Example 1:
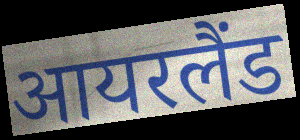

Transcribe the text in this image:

आयरलैंड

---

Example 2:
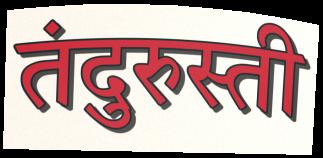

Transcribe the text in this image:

तंदुरुस्ती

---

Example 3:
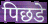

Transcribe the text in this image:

पिछडे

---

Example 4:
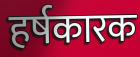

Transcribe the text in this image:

हर्षकारक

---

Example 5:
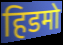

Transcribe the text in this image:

हिडमो